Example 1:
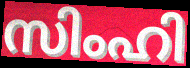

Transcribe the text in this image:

സിംഹി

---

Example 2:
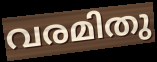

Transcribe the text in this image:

വരമിതു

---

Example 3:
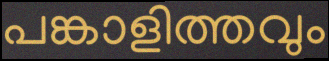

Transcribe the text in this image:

പങ്കാളിത്തവും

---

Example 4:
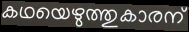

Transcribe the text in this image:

കഥയെഴുത്തുകാരന്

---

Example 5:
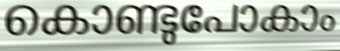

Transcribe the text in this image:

കൊണ്ടുപോകാം